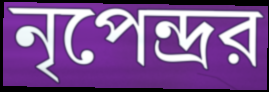
নৃপেন্দ্রর